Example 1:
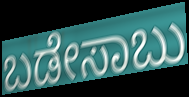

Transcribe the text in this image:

ಬಡೇಸಾಬು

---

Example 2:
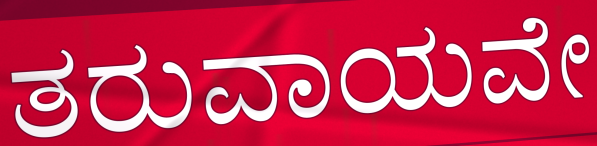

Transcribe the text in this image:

ತರುವಾಯವೇ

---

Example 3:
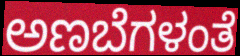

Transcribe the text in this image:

ಅಣಬೆಗಳಂತೆ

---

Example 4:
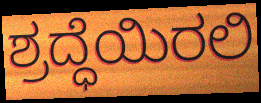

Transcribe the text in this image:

ಶ್ರದ್ಧೆಯಿರಲಿ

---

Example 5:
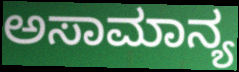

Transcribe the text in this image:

ಅಸಾಮಾನ್ಯ